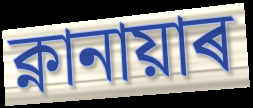
ক্নানায়াৰ